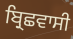
ਬ੍ਰਿਛਵਾਸੀ